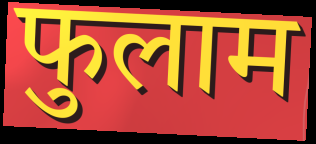
फुलाम